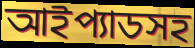
আইপ্যাডসহ